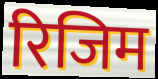
रिजिम